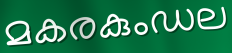
മകരകുംഡല